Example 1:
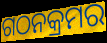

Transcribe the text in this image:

ଗଠନକ୍ରମର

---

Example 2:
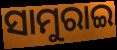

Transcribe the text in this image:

ସାମୁରାଇ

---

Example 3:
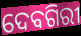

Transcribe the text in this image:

ଦେବଗିରୀ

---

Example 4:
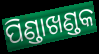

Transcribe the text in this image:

ପିଣ୍ଡାଖଣ୍ଡକ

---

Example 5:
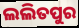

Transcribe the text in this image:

ଲଲିତପୁର